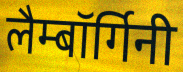
लैम्बॉर्गिनी